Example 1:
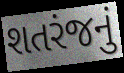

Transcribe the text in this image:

શતરંજનું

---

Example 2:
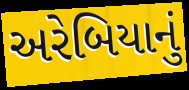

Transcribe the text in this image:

અરેબિયાનું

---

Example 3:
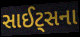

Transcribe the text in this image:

સાઈટ્સના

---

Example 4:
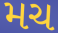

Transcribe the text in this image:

મચ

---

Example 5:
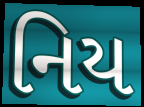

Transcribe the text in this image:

નિય